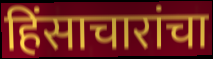
हिंसाचारांचा